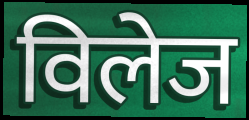
विलेज